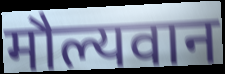
मौल्यवान